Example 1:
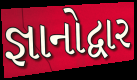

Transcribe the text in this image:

જ્ઞાનોદ્વાર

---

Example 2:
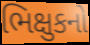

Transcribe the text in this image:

ભિક્ષુકનો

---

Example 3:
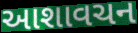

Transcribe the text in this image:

આશાવચન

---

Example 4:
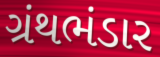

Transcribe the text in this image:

ગ્રંથભંડાર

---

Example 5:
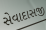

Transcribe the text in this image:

સેવાદાસજી